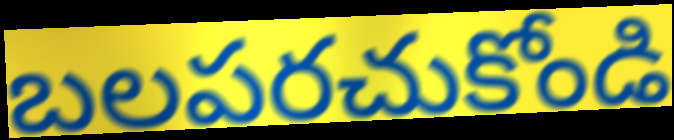
బలపరచుకోండి